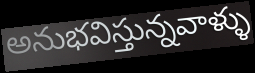
అనుభవిస్తున్నవాళ్ళు